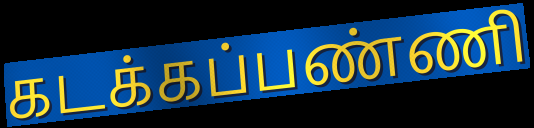
கடக்கப்பண்ணி